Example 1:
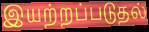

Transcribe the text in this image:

இயற்றப்படுதல்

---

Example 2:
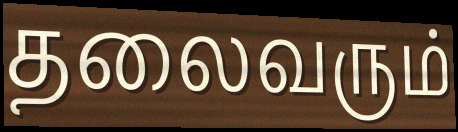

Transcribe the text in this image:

தலைவரும்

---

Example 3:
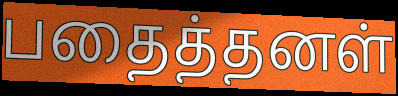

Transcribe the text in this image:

பதைத்தனள்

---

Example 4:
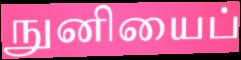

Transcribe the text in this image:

நுனியைப்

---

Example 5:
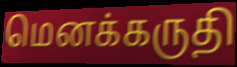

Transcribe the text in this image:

மெனக்கருதி